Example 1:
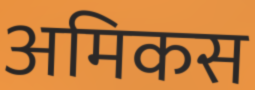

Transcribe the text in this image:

अमिकस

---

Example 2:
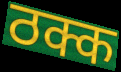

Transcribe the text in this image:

ठक्क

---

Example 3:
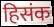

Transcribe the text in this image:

हिसंक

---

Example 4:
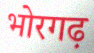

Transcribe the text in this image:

भोरगढ़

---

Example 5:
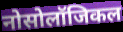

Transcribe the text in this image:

नोसोलॉजिकल